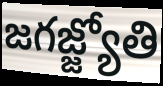
జగజ్జ్యోతి